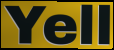
Yell